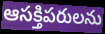
ఆసక్తిపరులను